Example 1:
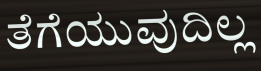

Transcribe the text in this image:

ತೆಗೆಯುವುದಿಲ್ಲ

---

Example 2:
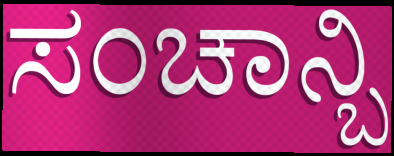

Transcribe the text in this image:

ಸಂಚಾನ್ಬಿ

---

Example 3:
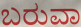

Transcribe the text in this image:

ಬರುವಾ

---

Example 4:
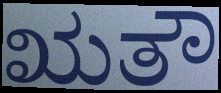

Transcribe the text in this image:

ಋತೌ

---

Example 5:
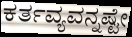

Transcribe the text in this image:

ಕರ್ತವ್ಯವನ್ನಷ್ಟೇ